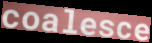
coalesce